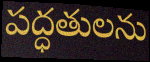
పద్ధతులను